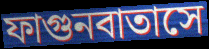
ফাগুনবাতাসে